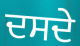
ਦਸਦੇ